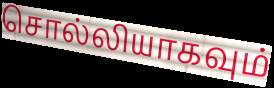
சொல்லியாகவும்